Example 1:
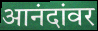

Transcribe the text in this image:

आनंदांवर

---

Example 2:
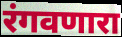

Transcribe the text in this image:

रंगवणारा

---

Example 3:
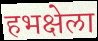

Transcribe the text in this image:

हभक्षेला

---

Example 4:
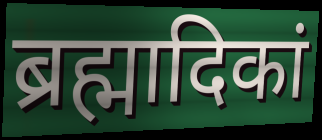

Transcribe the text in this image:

ब्रह्मादिकां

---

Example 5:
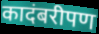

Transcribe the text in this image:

कादंबरीपण